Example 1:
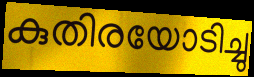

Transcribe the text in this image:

കുതിരയോടിച്ചു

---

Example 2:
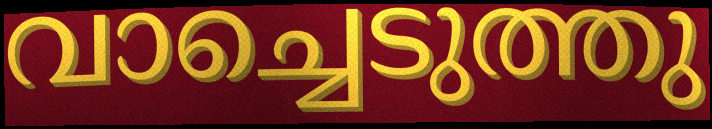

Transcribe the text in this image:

വാച്ചെടുത്തു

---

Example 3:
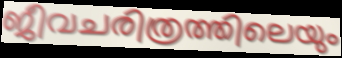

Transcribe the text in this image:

ജീവചരിത്രത്തിലെയും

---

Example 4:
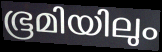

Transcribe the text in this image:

ഭൂമിയിലും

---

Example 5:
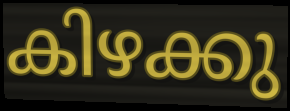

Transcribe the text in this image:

കിഴക്കു